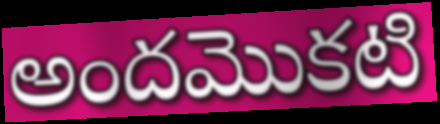
అందమొకటి